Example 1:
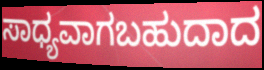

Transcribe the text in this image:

ಸಾಧ್ಯವಾಗಬಹುದಾದ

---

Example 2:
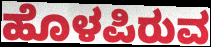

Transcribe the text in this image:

ಹೊಳಪಿರುವ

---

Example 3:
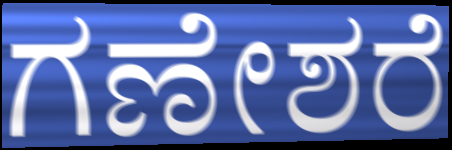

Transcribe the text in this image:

ಗಣೇಶರೆ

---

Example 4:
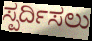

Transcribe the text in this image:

ಸ್ಪರ್ದಿಸಲು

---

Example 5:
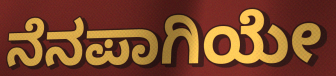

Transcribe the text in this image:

ನೆನಪಾಗಿಯೇ